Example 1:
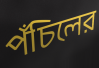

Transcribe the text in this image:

পঁচিলের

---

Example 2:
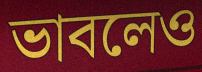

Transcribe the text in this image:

ভাবলেও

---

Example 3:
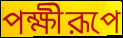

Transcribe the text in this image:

পক্ষীরূপে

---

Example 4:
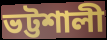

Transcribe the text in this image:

ভট্টশালী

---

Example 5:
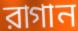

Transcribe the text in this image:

রাগান